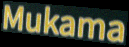
Mukama